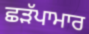
ਛੜੱਪਾਮਾਰ